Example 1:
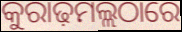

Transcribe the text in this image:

କୁରାଢ଼ମଲ୍ଲଠାରେ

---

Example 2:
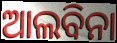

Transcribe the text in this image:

ଆଲବିନା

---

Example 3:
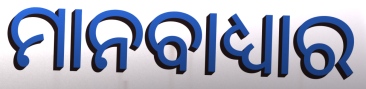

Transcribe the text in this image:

ମାନବାଧ୍ୟାର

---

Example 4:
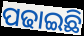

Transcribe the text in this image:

ପଢାଇଛି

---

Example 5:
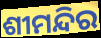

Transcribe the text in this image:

ଶୀମନ୍ଦିର